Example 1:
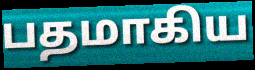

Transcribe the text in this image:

பதமாகிய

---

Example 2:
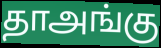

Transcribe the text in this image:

தாஅங்கு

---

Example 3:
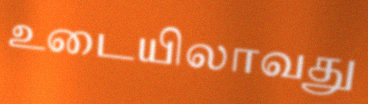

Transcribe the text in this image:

உடையிலாவது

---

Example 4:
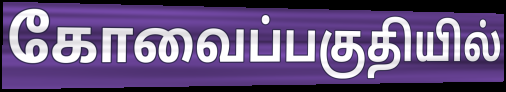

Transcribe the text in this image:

கோவைப்பகுதியில்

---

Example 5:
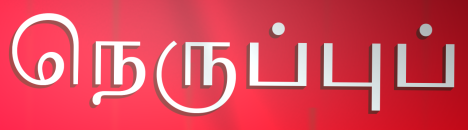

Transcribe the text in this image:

நெருப்புப்